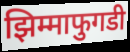
झिम्माफुगडी